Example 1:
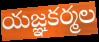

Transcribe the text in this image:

యజ్ఞకర్మల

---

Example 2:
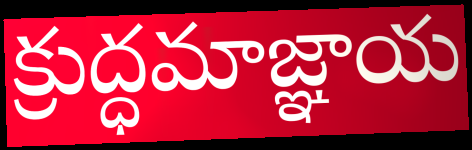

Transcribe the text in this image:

క్రుద్ధమాజ్ఞాయ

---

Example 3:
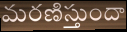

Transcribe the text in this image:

మరణిస్తుందా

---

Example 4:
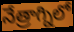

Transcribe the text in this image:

నేత్రాగ్నిలో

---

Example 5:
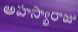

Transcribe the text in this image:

అహస్యారాజు